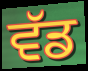
ਵੱਡ